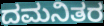
ದಮನಿತರ